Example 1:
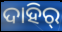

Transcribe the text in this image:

ଦାହିର୍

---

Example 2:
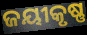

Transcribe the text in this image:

ଜୟୀକୃଷ୍ଣ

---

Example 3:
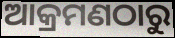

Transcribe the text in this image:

ଆକ୍ରମଣଠାରୁ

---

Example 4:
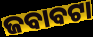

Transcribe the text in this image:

ଜବାବଟା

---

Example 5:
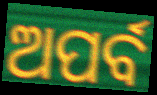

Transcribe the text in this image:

ଅପର୍ବ